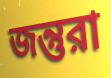
জন্তুরা